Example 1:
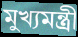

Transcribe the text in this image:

মুখ্যমন্ত্রী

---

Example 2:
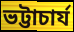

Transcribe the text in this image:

ভট্টাচার্য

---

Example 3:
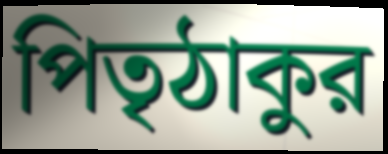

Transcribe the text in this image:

পিতৃঠাকুর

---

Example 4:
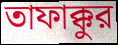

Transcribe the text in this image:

তাফাক্কুর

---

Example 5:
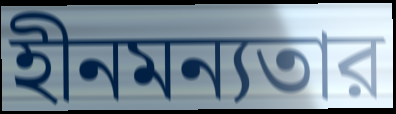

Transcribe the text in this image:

হীনমন্যতার